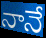
నానే